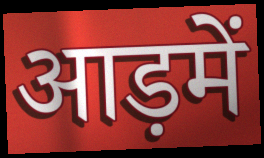
आड़में